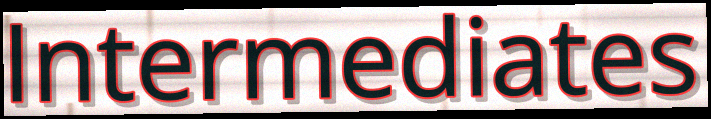
Intermediates